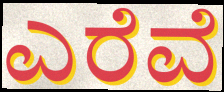
ಎರೆವೆ